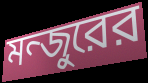
মন্জুরের